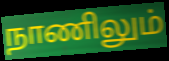
நாணிலும்